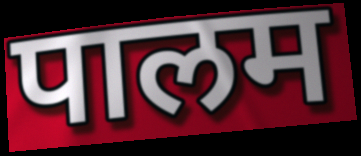
पालम